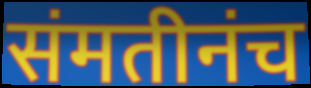
संमतीनंच